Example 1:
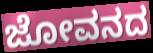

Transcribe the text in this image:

ಜೋವನದ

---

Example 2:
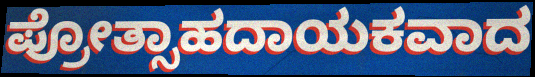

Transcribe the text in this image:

ಪ್ರೋತ್ಸಾಹದಾಯಕವಾದ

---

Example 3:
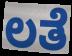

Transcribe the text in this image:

ಲತೆ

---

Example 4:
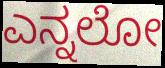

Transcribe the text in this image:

ಎನ್ನಲೋ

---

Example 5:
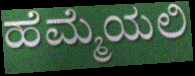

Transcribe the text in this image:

ಹೆಮ್ಮೆಯಲಿ